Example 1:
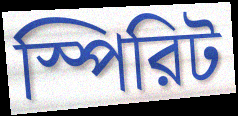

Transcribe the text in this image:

স্পিরিট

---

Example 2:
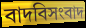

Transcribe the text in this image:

বাদবিসংবাদ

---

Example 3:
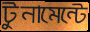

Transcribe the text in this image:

টুনামেন্টে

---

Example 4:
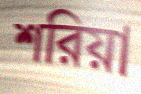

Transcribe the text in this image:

শরিয়া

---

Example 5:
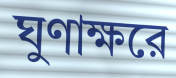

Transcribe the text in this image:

ঘুণাক্ষরে